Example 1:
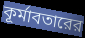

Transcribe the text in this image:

কূর্মাবতারের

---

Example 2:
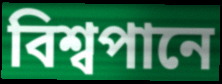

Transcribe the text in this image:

বিশ্বপানে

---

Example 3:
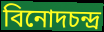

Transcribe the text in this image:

বিনোদচন্দ্র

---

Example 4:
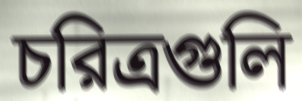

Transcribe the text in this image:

চরিত্রগুলি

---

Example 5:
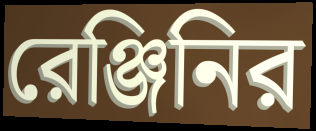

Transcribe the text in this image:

রেঞ্জিনির